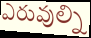
ఎరువుల్ని